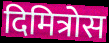
दिमित्रोस